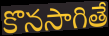
కొనసాగితే